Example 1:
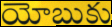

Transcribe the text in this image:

యోబుకు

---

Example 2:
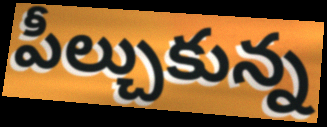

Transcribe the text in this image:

పీల్చుకున్న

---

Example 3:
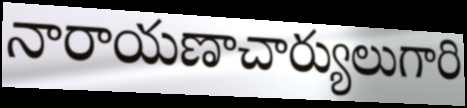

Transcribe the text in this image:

నారాయణాచార్యులుగారి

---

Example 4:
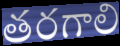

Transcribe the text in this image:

తరగాలి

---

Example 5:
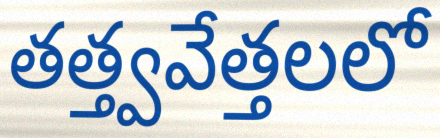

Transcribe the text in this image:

తత్త్వవేత్తలలో